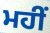
ਮਹੀਂ